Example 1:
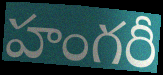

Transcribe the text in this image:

హంగరీ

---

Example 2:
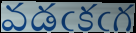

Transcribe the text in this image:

వడఁకఁగ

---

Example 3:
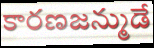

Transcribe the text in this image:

కారణజన్ముడే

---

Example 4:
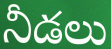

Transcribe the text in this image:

నీడలు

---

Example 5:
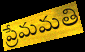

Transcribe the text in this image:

ప్రేమమతి